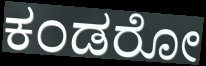
ಕಂಡರೋ